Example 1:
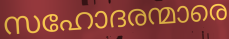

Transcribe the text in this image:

സഹോദരന്മാരെ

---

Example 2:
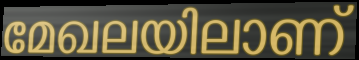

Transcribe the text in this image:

മേഖലയിലാണ്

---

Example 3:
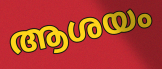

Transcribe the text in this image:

ആശയം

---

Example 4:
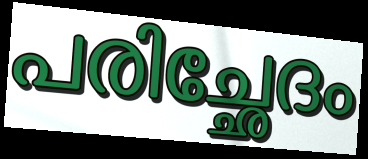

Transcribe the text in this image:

പരിച്ഛേദം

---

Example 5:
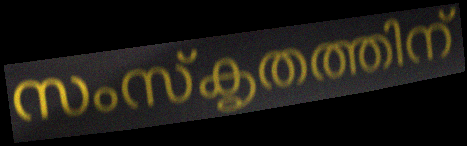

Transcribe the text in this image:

സംസ്‌കൃതത്തിന്